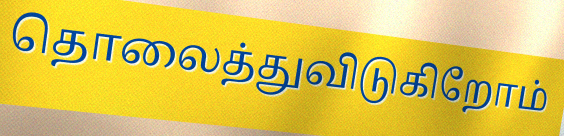
தொலைத்துவிடுகிறோம்